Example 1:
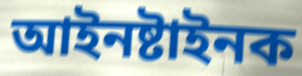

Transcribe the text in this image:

আইনষ্টাইনক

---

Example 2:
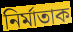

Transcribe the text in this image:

নিৰ্মাতাক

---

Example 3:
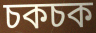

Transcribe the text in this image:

চকচক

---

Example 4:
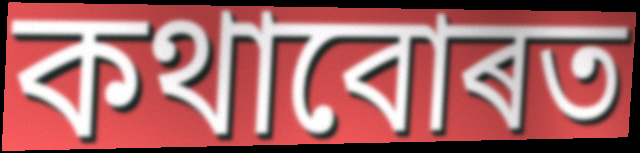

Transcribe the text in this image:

কথাবোৰত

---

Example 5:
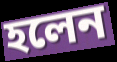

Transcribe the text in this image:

হলেন